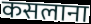
कसलाना